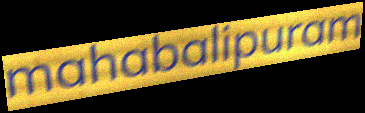
mahabalipuram